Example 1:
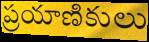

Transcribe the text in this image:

ప్రయాణికులు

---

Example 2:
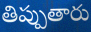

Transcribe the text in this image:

తిప్పుతారు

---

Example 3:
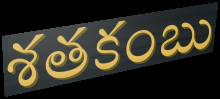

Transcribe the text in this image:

శతకంబు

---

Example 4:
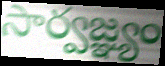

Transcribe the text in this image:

సార్వజ్ఞ్యం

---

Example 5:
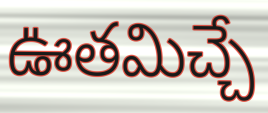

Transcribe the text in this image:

ఊతమిచ్చే